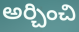
అర్చించి